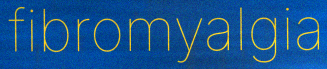
fibromyalgia